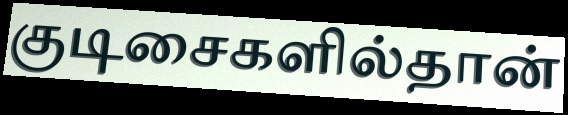
குடிசைகளில்தான்